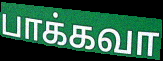
பாக்கவா